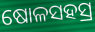
ଷୋଳସହସ୍ର